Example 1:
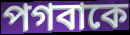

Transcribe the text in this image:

পগবাকে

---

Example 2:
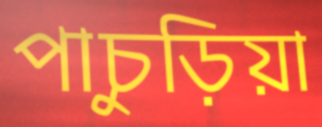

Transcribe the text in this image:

পাচুড়িয়া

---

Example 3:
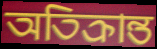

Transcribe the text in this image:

অতিক্রান্ত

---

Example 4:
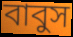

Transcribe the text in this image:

বাবুস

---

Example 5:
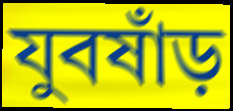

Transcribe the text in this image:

যুবষাঁড়